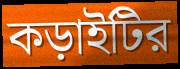
কড়াইটির